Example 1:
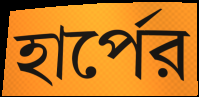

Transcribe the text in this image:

হার্পের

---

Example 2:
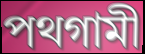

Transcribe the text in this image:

পথগামী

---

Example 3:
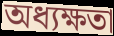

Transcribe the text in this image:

অধ্যক্ষতা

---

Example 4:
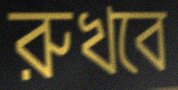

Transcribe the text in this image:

রুখবে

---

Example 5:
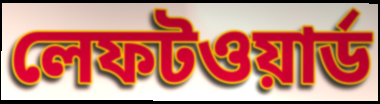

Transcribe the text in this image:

লেফটওয়ার্ড